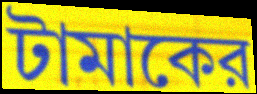
টামাকের